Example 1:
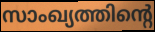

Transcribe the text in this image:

സാംഖ്യത്തിന്റെ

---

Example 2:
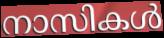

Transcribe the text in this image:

നാസികൾ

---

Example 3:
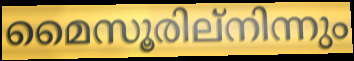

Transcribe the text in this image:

മൈസൂരില്നിന്നും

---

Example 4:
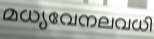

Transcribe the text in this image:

മധ്യവേനലവധി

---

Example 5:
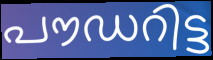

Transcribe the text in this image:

പൗഡറിട്ട